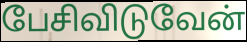
பேசிவிடுவேன்